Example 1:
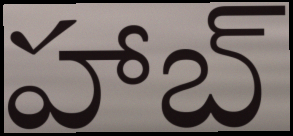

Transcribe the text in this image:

హాబ్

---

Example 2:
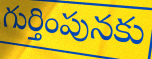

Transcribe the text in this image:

గుర్తింపునకు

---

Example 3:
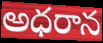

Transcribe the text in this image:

అధరాన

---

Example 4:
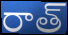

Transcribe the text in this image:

రాత్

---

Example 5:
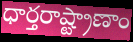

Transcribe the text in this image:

ధార్తరాష్ట్రాణాం